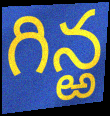
గిన్ఱ